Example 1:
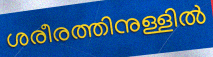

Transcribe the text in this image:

ശരീരത്തിനുള്ളിൽ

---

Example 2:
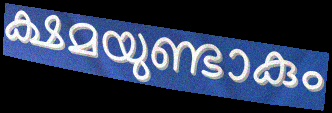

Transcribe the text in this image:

ക്ഷമയുണ്ടാകും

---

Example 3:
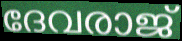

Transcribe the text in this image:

ദേവരാജ്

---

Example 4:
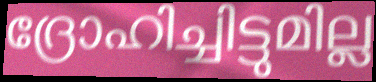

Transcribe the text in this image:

ദ്രോഹിച്ചിട്ടുമില്ല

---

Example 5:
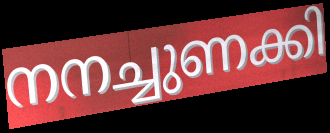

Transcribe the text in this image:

നനച്ചുണക്കി